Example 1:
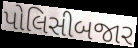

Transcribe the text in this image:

પોલિસીબજાર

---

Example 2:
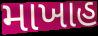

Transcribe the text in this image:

માખાહ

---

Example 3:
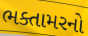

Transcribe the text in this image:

ભક્તામરનો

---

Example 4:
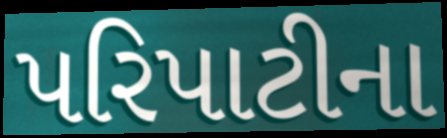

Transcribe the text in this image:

પરિપાટીના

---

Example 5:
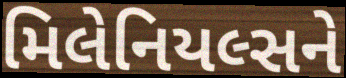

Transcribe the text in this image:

મિલેનિયલ્સને